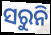
ସରୁନି